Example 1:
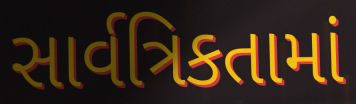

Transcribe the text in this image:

સાર્વત્રિકતામાં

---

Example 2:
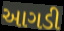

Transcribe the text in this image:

આગડી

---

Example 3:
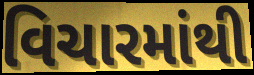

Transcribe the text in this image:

વિચારમાંથી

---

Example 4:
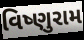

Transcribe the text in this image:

વિષ્ણુરામ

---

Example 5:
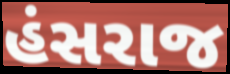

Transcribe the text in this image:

હંસરાજ